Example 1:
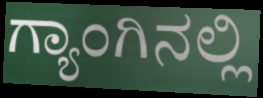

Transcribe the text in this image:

ಗ್ಯಾಂಗಿನಲ್ಲಿ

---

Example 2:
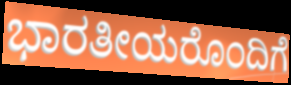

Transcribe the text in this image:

ಭಾರತೀಯರೊಂದಿಗೆ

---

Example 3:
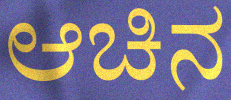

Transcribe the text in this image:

ಆಚಿನ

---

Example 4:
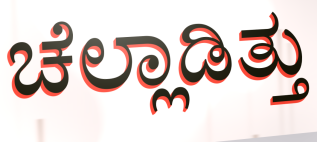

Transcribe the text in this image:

ಚೆಲ್ಲಾಡಿತ್ತು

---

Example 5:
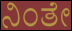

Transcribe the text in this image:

ನಿಂತೇ